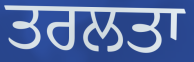
ਤਰਲਤਾ